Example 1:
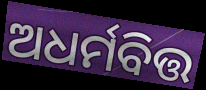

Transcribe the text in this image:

ଅଧର୍ମବିତ୍ତ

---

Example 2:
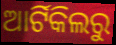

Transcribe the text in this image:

ଆର୍ଟିକିଲରୁ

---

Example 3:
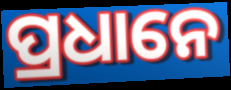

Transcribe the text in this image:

ପ୍ରଧାନେ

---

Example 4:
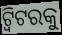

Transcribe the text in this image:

ଟ୍ୱିଟରକୁ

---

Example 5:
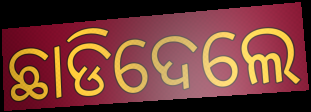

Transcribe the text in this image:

ଛାଡିଦେଲେ